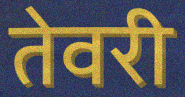
तेवरी